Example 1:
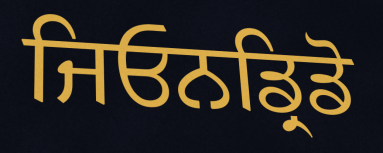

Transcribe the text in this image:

ਜਿਓਨਡ੍ਰਿਡੋ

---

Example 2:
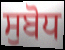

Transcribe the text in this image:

ਸੁਬੋਧ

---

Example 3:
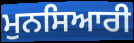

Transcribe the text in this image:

ਮੁਨਸਿਆਰੀ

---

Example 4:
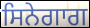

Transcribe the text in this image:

ਸਿਨੇਗਾਗ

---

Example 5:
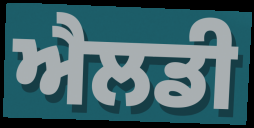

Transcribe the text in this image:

ਐਲਡੀ